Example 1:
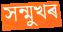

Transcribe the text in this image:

সন্মুখৰ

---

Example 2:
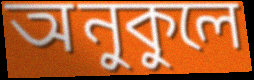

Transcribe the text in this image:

অনুকুলে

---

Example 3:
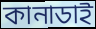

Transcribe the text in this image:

কানাডাই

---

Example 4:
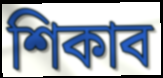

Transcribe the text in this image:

শিকাব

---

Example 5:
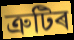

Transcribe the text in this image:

ত্ৰুটিৰ